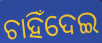
ଚାହିଁଦେଇ